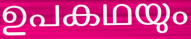
ഉപകഥയും